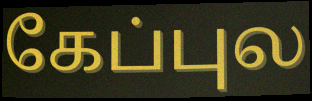
கேப்புல